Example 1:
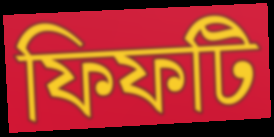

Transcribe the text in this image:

ফিফটি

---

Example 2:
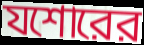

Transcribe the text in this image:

যশোরের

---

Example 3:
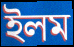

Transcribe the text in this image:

ইলম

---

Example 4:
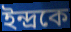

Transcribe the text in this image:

ইন্দ্রকে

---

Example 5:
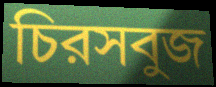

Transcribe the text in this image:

চিরসবুজ